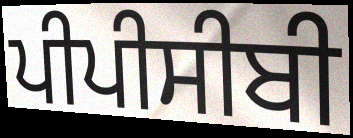
ਪੀਪੀਸੀਬੀ